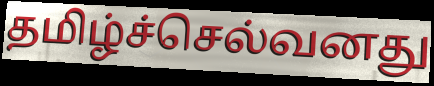
தமிழ்ச்செல்வனது